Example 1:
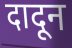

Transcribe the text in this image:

दादून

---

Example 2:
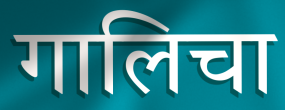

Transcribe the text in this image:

गालिचा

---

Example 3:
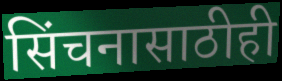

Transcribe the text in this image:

सिंचनासाठीही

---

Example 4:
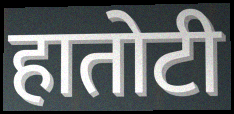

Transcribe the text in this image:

हातोटी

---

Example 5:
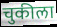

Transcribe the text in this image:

चुकीला